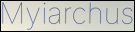
Myiarchus